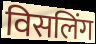
विसलिंग